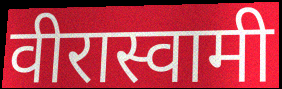
वीरास्वामी